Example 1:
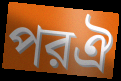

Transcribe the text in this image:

পরঐ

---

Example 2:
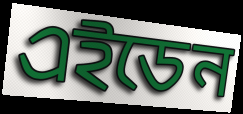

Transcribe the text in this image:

এইডেন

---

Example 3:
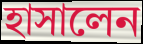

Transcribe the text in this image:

হাসালেন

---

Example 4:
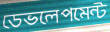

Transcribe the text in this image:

ডেভলেপমেন্ট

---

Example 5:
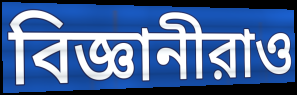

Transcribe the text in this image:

বিজ্ঞানীরাও